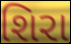
શિરા